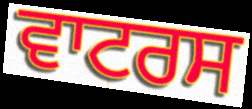
ਵਾਟਰਸ